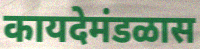
कायदेमंडळास